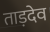
ताड़देव